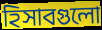
হিসাবগুলো